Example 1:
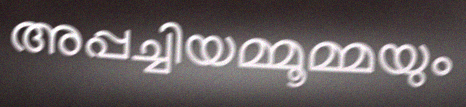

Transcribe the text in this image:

അപ്പച്ചിയമ്മൂമ്മയും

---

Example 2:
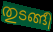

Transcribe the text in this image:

തുടങ്ങീ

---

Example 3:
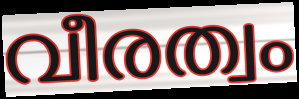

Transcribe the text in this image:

വീരത്വം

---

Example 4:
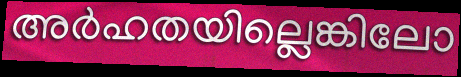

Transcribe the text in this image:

അർഹതയില്ലെങ്കിലോ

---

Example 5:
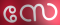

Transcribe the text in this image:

സേ